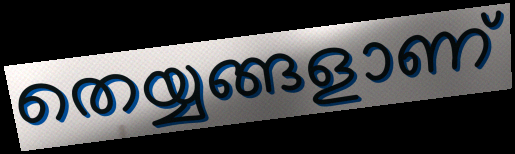
തെയ്യങ്ങളാണ്